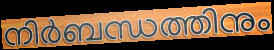
നിർബന്ധത്തിനും